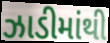
ઝાડીમાંથી